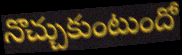
నొచ్చుకుంటుందో